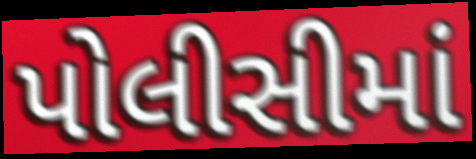
પોલીસીમાં